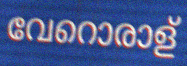
വേറൊരാള്